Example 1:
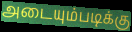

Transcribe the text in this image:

அடையும்படிக்கு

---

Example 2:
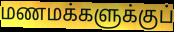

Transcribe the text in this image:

மணமக்களுக்குப்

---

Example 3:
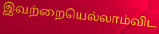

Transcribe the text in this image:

இவற்றையெல்லாம்விட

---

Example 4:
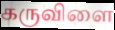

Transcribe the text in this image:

கருவிளை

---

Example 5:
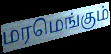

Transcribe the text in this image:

மரமெங்கும்